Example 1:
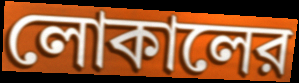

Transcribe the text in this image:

লোকালের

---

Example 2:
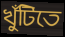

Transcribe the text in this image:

খুঁটিতে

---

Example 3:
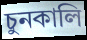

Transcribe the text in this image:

চুনকালি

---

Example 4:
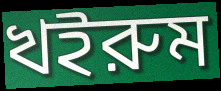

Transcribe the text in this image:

খইরুম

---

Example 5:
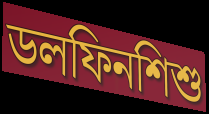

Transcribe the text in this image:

ডলফিনশিশু